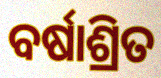
ବର୍ଷାଶ୍ରିତ